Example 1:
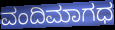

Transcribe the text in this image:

ವಂದಿಮಾಗಧ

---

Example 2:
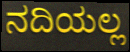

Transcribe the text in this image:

ನದಿಯಲ್ಲ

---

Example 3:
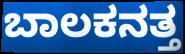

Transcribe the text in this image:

ಬಾಲಕನತ್ತ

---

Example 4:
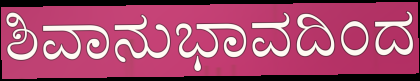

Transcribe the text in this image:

ಶಿವಾನುಭಾವದಿಂದ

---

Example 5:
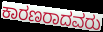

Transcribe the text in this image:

ಕಾರಣರಾದವರು